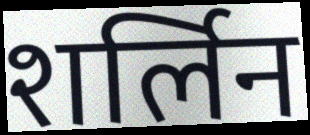
शर्लिन